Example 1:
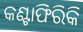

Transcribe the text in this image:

କଣ୍ଟାଫିରିକି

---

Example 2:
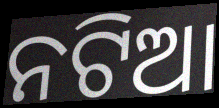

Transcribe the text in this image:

ନଟିଆ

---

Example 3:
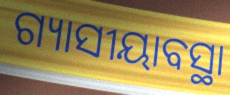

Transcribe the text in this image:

ଗ୍ୟାସୀୟାବସ୍ଥା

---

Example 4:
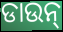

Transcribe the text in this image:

ଡାଉନ୍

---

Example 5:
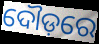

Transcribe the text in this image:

ଦୌଡ଼ରେ